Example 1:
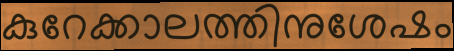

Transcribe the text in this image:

കുറേക്കാലത്തിനുശേഷം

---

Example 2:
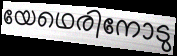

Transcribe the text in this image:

യേഥെരിനോടു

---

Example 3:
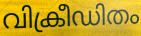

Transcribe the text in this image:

വിക്രീഡിതം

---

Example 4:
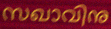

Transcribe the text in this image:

സഖാവിനു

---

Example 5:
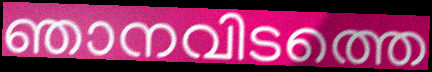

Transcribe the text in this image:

ഞാനവിടത്തെ